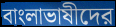
বাংলাভাষীদের